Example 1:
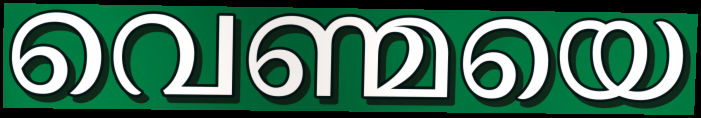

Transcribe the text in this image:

വെണ്മയെ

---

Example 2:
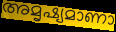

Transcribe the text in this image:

അമൃഷ്യമാണാ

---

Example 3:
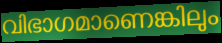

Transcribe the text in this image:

വിഭാഗമാണെങ്കിലും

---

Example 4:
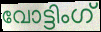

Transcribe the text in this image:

വോട്ടിംഗ്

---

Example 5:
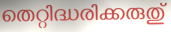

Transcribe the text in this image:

തെറ്റിദ്ധരിക്കരുതു്